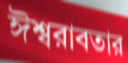
ঈশ্বরাবতার